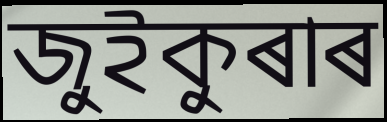
জুইকুৰাৰ